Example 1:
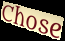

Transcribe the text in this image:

Chose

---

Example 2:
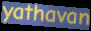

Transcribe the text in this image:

yathavan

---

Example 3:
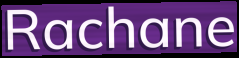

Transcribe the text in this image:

Rachane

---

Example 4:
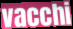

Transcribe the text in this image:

vacchi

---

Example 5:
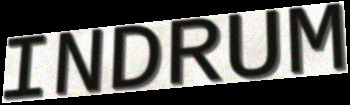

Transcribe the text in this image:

INDRUM